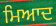
ਮਿਆਦ